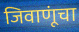
जिवाणूंचा